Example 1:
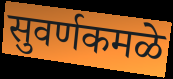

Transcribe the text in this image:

सुवर्णकमळे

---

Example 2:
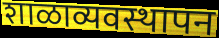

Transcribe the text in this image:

शाळाव्यवस्थापन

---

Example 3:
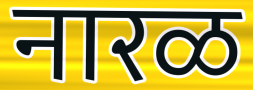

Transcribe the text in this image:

नारळ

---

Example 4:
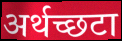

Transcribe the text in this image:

अर्थच्छटा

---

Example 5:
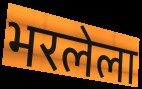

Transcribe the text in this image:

भरलेला